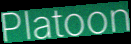
Platoon